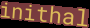
inithal